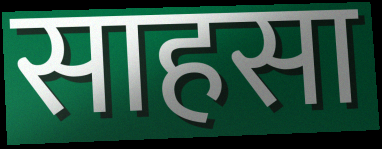
साहसा